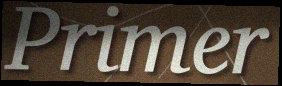
Primer